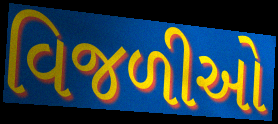
વિજળીઓ